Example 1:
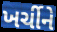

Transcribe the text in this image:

ખર્ચીને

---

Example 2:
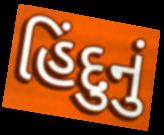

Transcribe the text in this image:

હિંદુનું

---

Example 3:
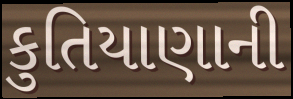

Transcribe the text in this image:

કુતિયાણાની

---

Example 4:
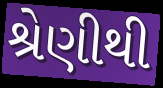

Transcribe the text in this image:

શ્રેણીથી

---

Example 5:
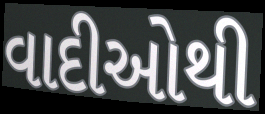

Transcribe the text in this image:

વાદીઓથી